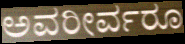
ಅವರೀರ್ವರೂ